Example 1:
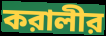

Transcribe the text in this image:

করালীর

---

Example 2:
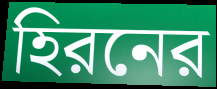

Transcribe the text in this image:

হিরনের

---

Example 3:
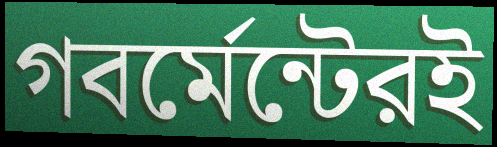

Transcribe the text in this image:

গবর্মেন্টেরই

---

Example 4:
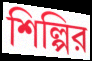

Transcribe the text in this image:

শিল্পির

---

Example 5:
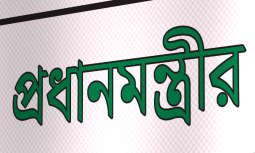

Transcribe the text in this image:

প্রধানমন্ত্রীর